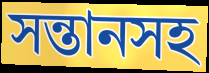
সন্তানসহ